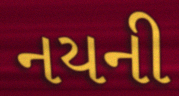
નયની